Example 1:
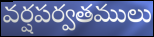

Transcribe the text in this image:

వర్షపర్వతములు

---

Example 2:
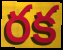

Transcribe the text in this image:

రక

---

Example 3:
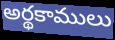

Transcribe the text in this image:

అర్థకాములు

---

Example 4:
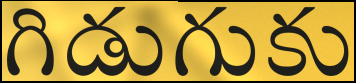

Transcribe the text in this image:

గిడుగుకు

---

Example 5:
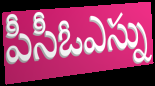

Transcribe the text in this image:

పీసీఓఎస్ను